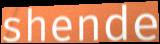
shende